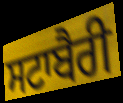
ਸਟਾਬੈਰੀ